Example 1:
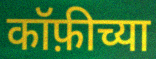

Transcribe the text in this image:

कॉफ़ीच्या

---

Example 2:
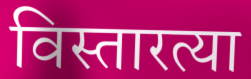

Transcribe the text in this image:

विस्तारत्या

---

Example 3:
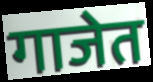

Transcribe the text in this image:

गाजेत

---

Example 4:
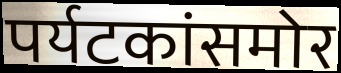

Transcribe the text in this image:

पर्यटकांसमोर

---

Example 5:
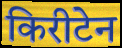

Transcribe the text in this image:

किरीटेन